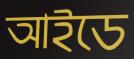
আইডে